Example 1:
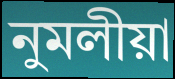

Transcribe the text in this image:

নুমলীয়া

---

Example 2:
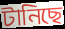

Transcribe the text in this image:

টানিছে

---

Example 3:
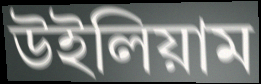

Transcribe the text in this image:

উইলিয়াম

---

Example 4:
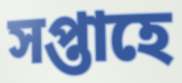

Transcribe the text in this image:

সপ্তাহে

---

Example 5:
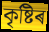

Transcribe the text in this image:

কৃষ্টিৰ